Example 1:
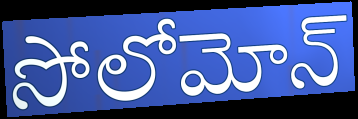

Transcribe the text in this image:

సోలోమోన్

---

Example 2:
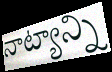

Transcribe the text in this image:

నాట్యాన్ని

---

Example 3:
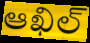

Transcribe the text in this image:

ఆఖిల్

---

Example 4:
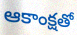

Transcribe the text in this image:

ఆకాంక్షతో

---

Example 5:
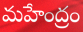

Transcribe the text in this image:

మహేంద్రం